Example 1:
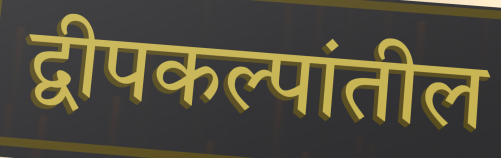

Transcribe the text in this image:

द्वीपकल्पांतील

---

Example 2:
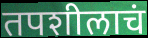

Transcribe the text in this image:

तपशीलाचं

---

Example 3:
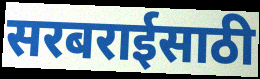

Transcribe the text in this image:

सरबराईसाठी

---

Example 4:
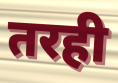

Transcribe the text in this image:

तरही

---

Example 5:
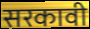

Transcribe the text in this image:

सरकावी